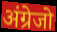
अंग्रेजो